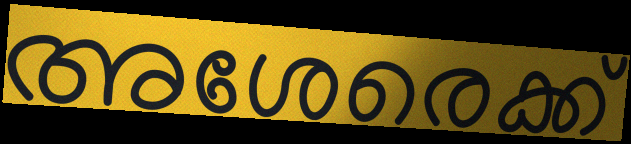
അശേരെക്ക്